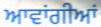
ਆਵਾਂਗੀਆਂ